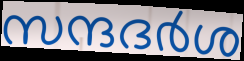
സന്ദദർശ